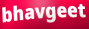
bhavgeet